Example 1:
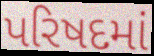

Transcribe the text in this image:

પરિષદમાં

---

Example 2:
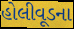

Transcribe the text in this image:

હોલીવૂડના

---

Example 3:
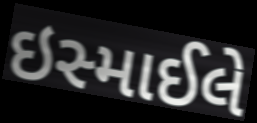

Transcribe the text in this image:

ઇસ્માઈલે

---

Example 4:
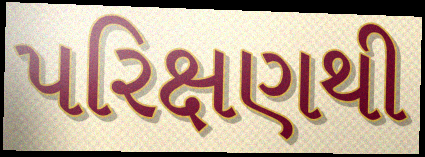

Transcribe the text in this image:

પરિક્ષણથી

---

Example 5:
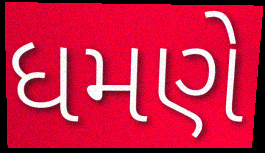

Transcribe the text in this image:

ધમણે